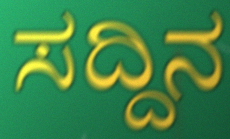
ಸದ್ದಿನ